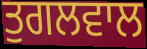
ਤੁਗਲਵਾਲ